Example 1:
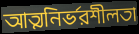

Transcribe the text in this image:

আত্মনির্ভরশীলতা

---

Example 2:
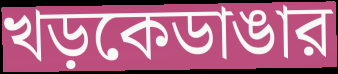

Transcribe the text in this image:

খড়কেডাঙার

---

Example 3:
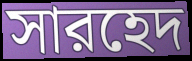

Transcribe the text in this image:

সারহেদ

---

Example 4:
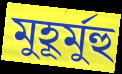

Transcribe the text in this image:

মুহূর্মুহু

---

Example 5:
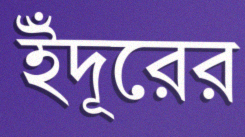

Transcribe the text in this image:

ইঁদূরের